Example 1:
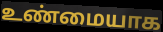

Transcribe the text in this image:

உண்மையாக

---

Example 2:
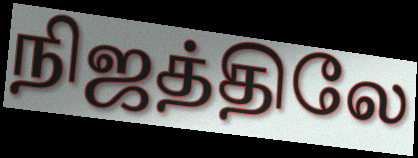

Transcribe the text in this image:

நிஜத்திலே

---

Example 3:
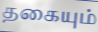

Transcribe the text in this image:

தகையும்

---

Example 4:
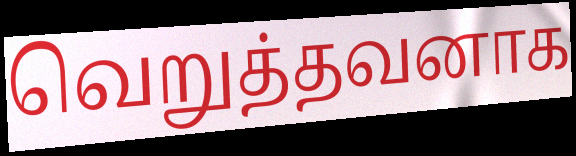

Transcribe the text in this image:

வெறுத்தவனாக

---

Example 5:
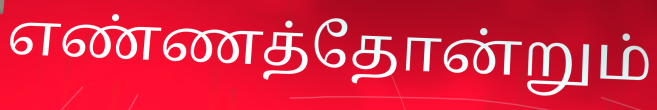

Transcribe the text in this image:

எண்ணத்தோன்றும்